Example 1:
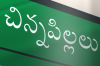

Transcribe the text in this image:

చిన్నపిల్లలు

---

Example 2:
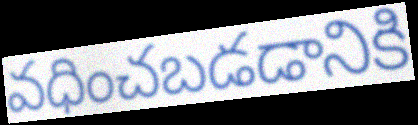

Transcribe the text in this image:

వధించబడడానికి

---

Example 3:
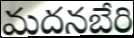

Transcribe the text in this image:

మదనబేరి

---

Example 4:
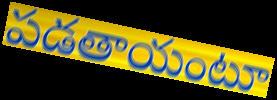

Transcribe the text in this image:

పడతాయంటూ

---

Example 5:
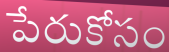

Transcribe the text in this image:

పేరుకోసం